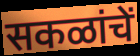
सकळांचें